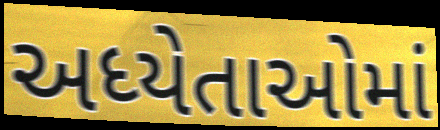
અધ્યેતાઓમાં